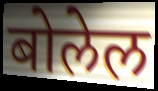
बोलेल